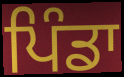
ਪਿੰਡਾ